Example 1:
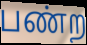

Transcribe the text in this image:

பண்ற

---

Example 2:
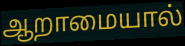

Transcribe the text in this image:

ஆறாமையால்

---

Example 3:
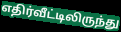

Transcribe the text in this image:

எதிர்வீட்டிலிருந்து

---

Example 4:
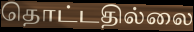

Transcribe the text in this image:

தொட்டதில்லை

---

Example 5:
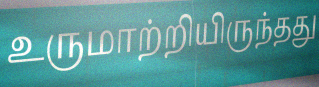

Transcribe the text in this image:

உருமாற்றியிருந்தது